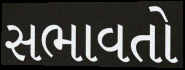
સભાવતો